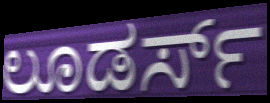
ಲೂಡರ್ಸ್